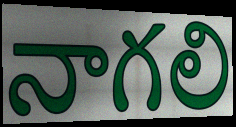
నాగలి